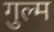
गुल्म